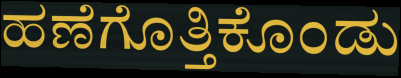
ಹಣೆಗೊತ್ತಿಕೊಂಡು